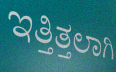
ಇತ್ತಿತ್ತಲಾಗಿ